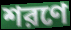
শরণে